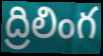
ద్రిలింగ